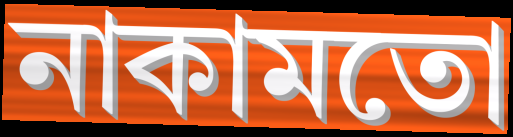
নাকামতো